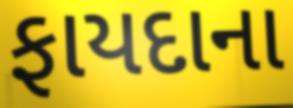
ફાયદાના